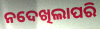
ନଦେଖିଲାପରି